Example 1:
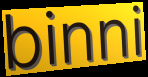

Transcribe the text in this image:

binni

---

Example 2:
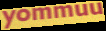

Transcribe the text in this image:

yommuu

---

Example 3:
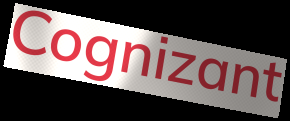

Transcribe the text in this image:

Cognizant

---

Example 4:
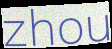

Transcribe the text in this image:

zhou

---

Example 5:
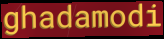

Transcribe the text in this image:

ghadamodi